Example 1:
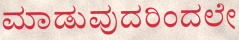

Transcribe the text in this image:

ಮಾಡುವುದರಿಂದಲೇ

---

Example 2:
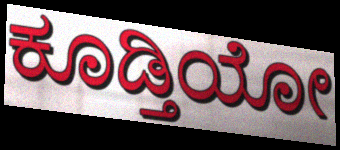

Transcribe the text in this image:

ಕೂಡ್ತಿಯೋ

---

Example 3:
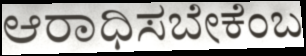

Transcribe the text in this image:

ಆರಾಧಿಸಬೇಕೆಂಬ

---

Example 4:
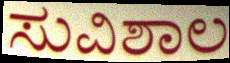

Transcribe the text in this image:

ಸುವಿಶಾಲ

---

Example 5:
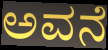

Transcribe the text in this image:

ಅವನೆ